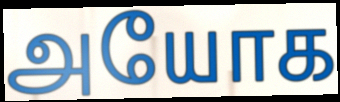
அயோக